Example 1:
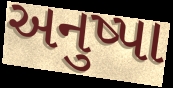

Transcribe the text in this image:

અનુષ્પા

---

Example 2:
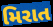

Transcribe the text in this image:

મિરાત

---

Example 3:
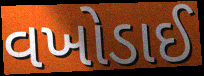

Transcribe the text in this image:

વખોડાઈ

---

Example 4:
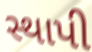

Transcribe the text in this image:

સ્થાપી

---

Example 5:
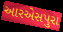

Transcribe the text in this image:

આરએસપુરા